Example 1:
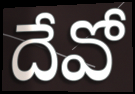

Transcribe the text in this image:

దేవో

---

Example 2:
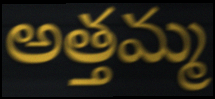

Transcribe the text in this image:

అత్తమ్మ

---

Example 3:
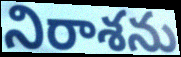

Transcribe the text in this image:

నిరాశను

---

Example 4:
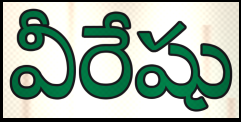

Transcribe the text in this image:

వీరేషు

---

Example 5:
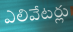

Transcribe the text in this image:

ఎలివేటర్లు